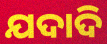
ଯଦାଦି